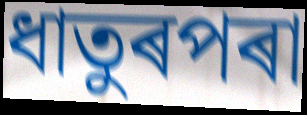
ধাতুৰপৰা